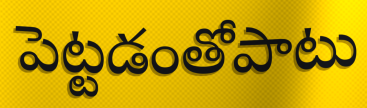
పెట్టడంతోపాటు